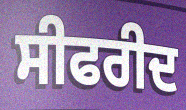
ਸੀਫਰੀਦ